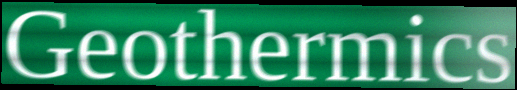
Geothermics